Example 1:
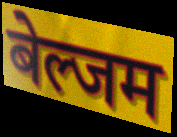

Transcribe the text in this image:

बेल्जम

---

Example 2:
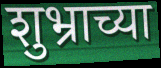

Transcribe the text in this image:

शुभ्राच्या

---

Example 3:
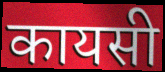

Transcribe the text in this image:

कायसी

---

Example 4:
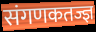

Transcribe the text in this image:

संगणकतज्ज्ञ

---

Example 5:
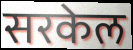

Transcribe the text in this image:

सरकेल